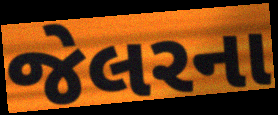
જેલરના